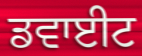
ਡਵਾਈਟ